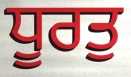
ਧੂਰਤੁ